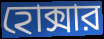
হোক্সার